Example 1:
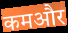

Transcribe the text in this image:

कमऔर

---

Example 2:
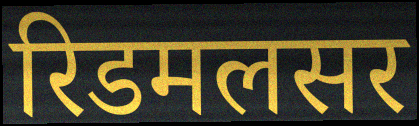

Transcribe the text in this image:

रिडमलसर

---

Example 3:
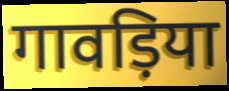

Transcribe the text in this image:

गावड़िया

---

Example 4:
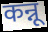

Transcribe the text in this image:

कन्नू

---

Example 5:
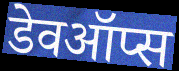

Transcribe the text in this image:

डेवऑप्स